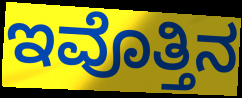
ಇವೊತ್ತಿನ